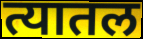
त्यातल